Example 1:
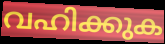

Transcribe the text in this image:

വഹിക്കുക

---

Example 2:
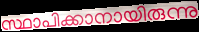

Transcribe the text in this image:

സ്ഥാപിക്കാനായിരുന്നു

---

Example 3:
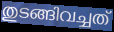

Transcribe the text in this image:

തുടങ്ങിവച്ചത്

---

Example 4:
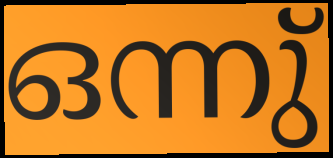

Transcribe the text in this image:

ഒന്നു്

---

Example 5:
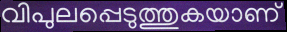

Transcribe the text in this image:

വിപുലപ്പെടുത്തുകയാണ്